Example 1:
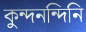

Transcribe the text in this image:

কুন্দনন্দিনি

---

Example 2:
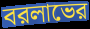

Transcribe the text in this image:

বরলাভের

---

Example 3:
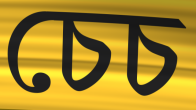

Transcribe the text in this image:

চেচ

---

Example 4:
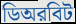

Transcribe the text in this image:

ডিঅরবিট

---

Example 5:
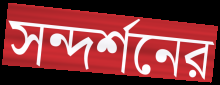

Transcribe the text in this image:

সন্দর্শনের